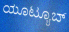
ಯೂಟ್ಯೂಬ್